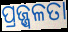
ପ୍ରଜ୍ଜ୍ୱଳତା